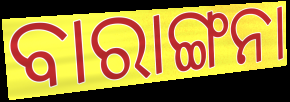
ବାରାଙ୍ଗନା